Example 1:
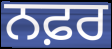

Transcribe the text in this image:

ਨਫ਼ਰ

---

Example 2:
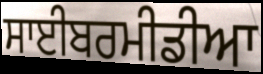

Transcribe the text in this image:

ਸਾਈਬਰਮੀਡੀਆ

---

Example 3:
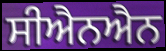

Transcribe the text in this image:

ਸੀਐਨਐਨ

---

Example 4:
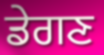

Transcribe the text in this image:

ਡੇਗਣ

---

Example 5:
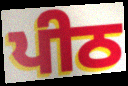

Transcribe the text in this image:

ਪੀਠ